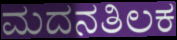
ಮದನತಿಲಕ